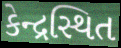
કેન્દ્રસ્થિત